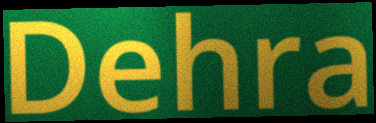
Dehra